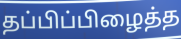
தப்பிப்பிழைத்த